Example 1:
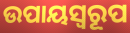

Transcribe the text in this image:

ଉପାୟସ୍ୱରୂପ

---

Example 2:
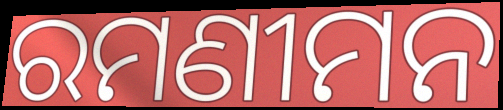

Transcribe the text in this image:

ରମଣୀମନ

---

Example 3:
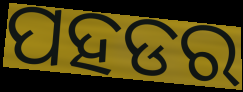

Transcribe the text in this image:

ପହଡର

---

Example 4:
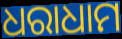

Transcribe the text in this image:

ଧରାଧାମ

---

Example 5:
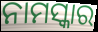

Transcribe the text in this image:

ନାମସ୍କାର